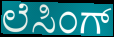
ಲೆಸಿಂಗ್